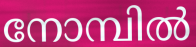
നോമ്പിൽ